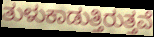
ತುಳುಕಾಡುತ್ತಿರುತ್ತವೆ